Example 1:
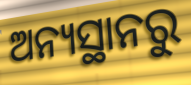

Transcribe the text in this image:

ଅନ୍ୟସ୍ଥାନରୁ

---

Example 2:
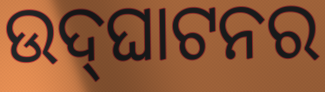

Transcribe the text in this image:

ଉଦ୍‍ଘାଟନର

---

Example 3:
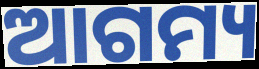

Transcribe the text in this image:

ଆଗମ୍ୟ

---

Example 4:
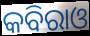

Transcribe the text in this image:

କବିରାଓ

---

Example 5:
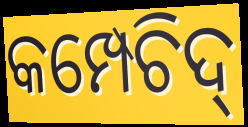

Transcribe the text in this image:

କମ୍ପେଚିଦ୍